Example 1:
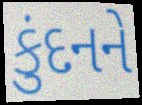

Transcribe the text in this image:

કુંદનને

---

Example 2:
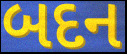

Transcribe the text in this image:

બદન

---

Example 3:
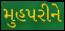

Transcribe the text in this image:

મુહપરીને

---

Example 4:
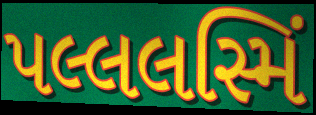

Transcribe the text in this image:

પલ્લલસ્મિં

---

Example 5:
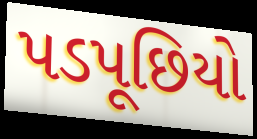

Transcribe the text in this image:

પડપૂછિયો